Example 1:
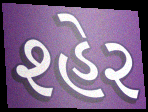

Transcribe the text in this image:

શ્હેર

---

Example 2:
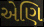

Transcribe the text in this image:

એણિ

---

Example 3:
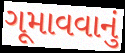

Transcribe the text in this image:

ગૂમાવવાનું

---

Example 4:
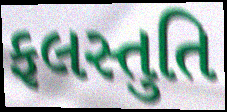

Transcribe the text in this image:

ફલસ્તુતિ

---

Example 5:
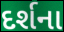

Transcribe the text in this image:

દર્શના